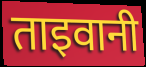
ताइवानी